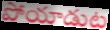
పోయాడుట